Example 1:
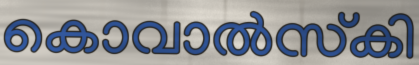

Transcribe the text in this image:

കൊവാൽസ്‌കി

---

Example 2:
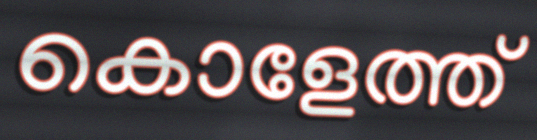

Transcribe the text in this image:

കൊളേത്ത്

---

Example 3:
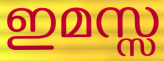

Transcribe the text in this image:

ഇമസ്സ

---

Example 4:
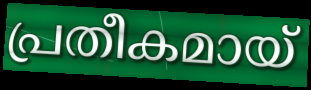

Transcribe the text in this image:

പ്രതീകമായ്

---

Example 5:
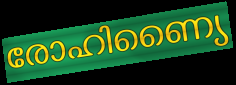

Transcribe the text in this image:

രോഹിണ്യൈ